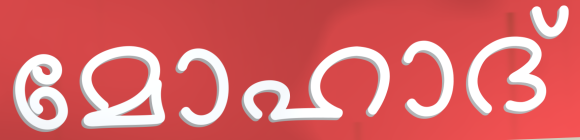
മോഹാദ്